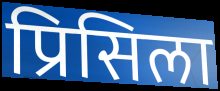
प्रिसिला